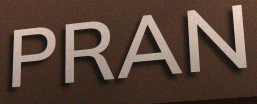
PRAN